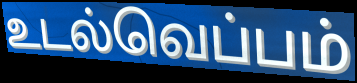
உடல்வெப்பம்